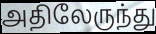
அதிலேருந்து